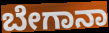
ಬೇಗಾನಾ